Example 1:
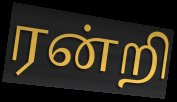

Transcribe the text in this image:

ரன்றி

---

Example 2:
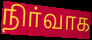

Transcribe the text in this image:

நிர்வாக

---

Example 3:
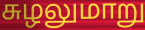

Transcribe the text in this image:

சுழலுமாறு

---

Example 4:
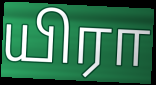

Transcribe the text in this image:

யிரா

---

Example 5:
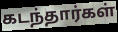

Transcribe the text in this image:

கடந்தார்கள்